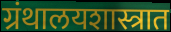
ग्रंथालयशास्त्रात